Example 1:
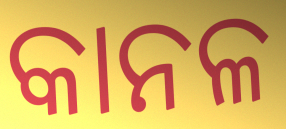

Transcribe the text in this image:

କାନଳ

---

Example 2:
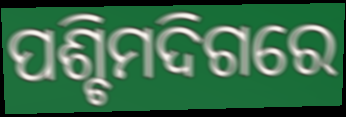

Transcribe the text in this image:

ପଶ୍ଚିମଦିଗରେ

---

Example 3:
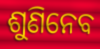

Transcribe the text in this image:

ଶୁଣିନେବ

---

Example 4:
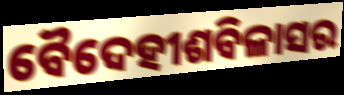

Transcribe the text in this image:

ବୈଦେହୀଶବିଳାସର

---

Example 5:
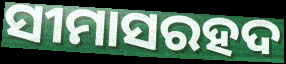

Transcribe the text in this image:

ସୀମାସରହଦ